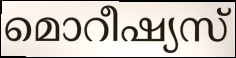
മൊറീഷ്യസ്